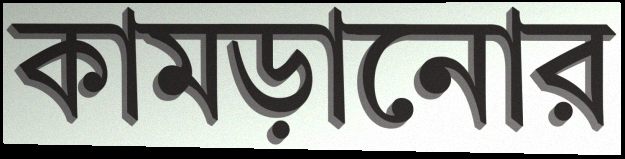
কামড়ানোর